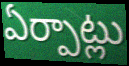
ఏర్పాట్లు